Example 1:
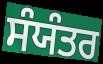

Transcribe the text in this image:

ਸੰਯੰਤਰ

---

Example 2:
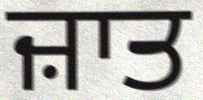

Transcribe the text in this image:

ਜ਼ਾਤ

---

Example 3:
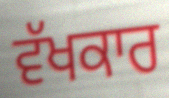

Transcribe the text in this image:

ਵੱਖਕਾਰ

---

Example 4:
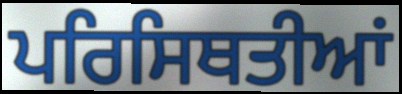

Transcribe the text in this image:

ਪਰਿਸਿਥਤੀਆਂ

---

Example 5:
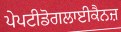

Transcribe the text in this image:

ਪੇਪਟੀਡੋਗਲਾਈਕੈਨਜ਼